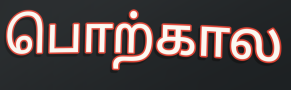
பொற்கால